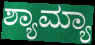
ಶ್ಯಾಮ್ಯಾ